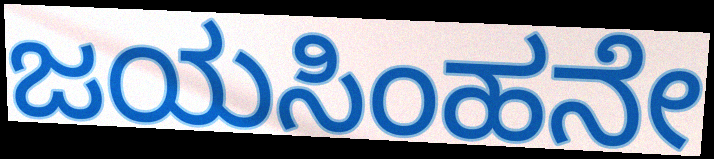
ಜಯಸಿಂಹನೇ